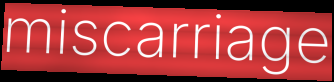
miscarriage